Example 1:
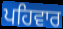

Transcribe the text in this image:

ਪਹਿਵਾਰ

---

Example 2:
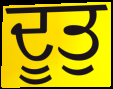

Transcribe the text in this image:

ਦੂਤੁ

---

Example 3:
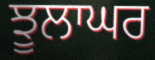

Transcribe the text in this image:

ਝੂਲਾਘਰ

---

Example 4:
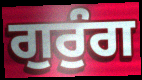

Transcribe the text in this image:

ਗੁਰੁੰਗ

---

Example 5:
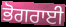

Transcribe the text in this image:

ਭੋਗਰਾਈ